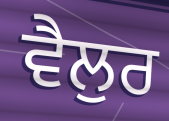
ਵੈਲੁਰ